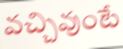
వచ్చివుంటే